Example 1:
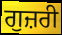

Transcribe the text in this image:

ਗੁਜ਼ਰੀ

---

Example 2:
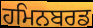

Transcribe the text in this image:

ਹਮਿਨਬਰਡ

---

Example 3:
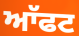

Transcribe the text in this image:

ਆੱਫਟ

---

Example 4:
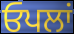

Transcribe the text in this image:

ਓਪਲਾਂ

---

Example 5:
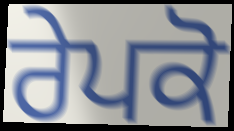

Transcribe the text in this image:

ਰੇਪਕੋ